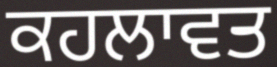
ਕਹਲਾਵਤ